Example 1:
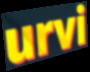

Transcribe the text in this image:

urvi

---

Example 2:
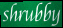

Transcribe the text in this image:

shrubby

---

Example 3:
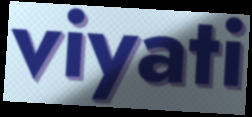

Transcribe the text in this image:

viyati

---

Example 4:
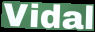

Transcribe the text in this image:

Vidal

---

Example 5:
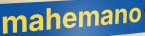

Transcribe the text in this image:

mahemano